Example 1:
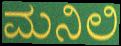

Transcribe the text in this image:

ಮನಿಲಿ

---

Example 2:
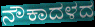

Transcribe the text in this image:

ನೌಕಾದಳದ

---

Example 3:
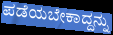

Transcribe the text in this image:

ಪಡೆಯಬೇಕಾದ್ದನ್ನು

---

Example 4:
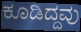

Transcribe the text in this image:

ಕೂಡಿದ್ದವು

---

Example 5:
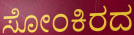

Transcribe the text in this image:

ಸೋಂಕಿರದ